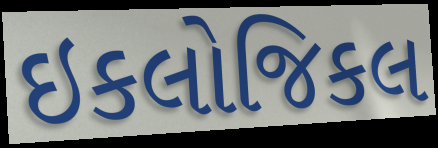
ઇકલોજિકલ